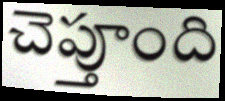
చెప్తూంది